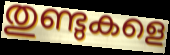
തുണ്ടുകളെ